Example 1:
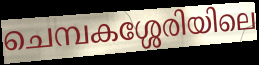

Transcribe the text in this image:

ചെമ്പകശ്ശേരിയിലെ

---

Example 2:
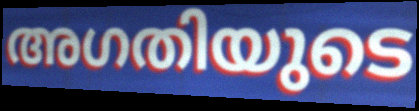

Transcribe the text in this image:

അഗതിയുടെ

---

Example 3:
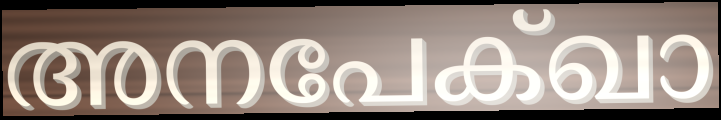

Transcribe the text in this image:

അനപേക്ഖാ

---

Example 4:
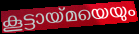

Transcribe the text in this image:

കൂട്ടായ്മയെയും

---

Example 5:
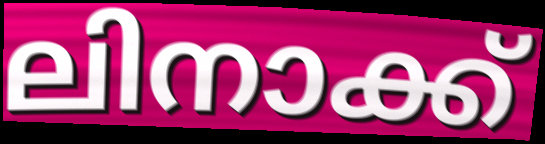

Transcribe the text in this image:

ലിനാക്ക്